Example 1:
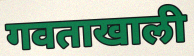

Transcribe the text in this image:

गवताखाली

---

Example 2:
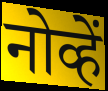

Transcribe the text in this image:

नोव्हें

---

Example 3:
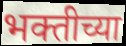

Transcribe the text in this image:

भक्तीच्या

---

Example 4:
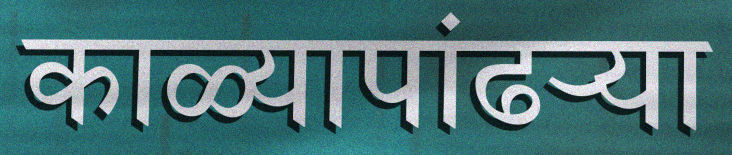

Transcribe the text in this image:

काळ्यापांढऱ्या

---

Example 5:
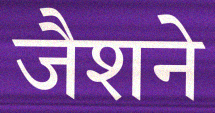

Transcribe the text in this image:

जैशने